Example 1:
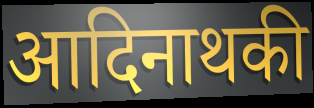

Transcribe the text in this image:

आदिनाथकी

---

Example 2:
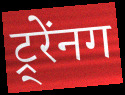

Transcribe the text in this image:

ट्र्रेंनग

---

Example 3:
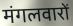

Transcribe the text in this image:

मंगलवारों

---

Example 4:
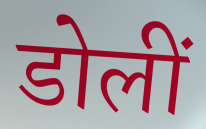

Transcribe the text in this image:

डोलीं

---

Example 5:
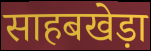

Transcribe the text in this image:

साहबखेड़ा